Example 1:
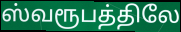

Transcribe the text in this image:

ஸ்வரூபத்திலே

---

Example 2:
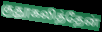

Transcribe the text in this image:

குதூகலித்தேன்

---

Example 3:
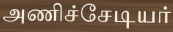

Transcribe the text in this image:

அணிச்சேடியர்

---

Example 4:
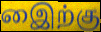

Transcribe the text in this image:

இைற்கு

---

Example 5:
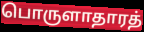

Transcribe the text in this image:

பொருளாதாரத்